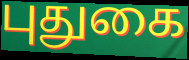
புதுகை